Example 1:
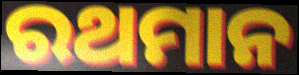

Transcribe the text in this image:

ରଥମାନ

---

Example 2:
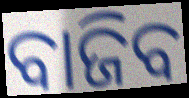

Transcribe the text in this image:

ବାଜିବ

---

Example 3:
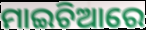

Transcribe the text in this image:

ମାଇଚିଆରେ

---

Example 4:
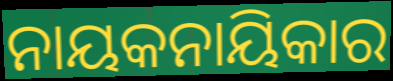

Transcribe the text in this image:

ନାୟକନାୟିକାର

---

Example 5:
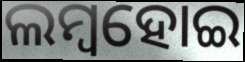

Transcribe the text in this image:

ଲମ୍ୱହୋଇ